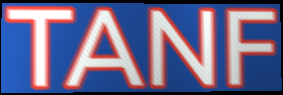
TANF